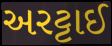
અરટ્ટાઈ